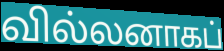
வில்லனாகப்